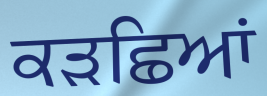
ਕੜਛਿਆਂ